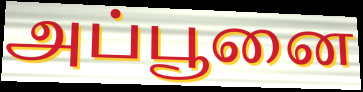
அப்பூனை